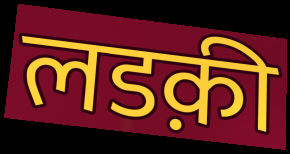
लडक़ी